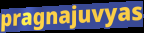
pragnajuvyas